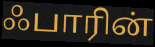
ஃபாரின்